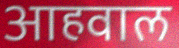
आहवाल